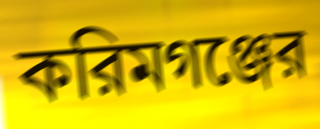
করিমগঞ্জের